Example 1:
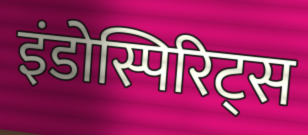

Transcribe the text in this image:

इंडोस्पिरिट्स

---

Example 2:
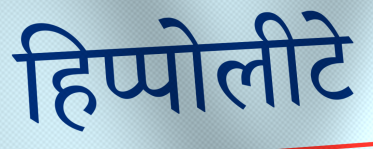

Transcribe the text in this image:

हिप्पोलीटे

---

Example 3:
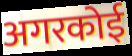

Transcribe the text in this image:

अगरकोई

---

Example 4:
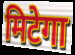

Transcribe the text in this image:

मिटेगा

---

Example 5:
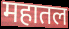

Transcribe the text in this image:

महातल